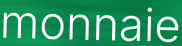
monnaie